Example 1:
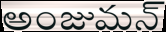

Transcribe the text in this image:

అంజుమన్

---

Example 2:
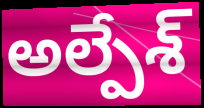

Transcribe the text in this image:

అల్పేశ్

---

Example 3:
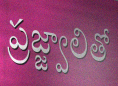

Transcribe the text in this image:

ప్రజ్జ్వాలితో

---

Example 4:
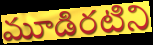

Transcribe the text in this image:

మూడిరటిని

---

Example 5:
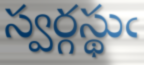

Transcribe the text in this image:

స్వర్గస్థుఁ